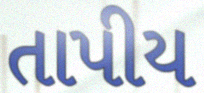
તાપીય